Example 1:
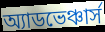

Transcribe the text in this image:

অ্যাডভেঞ্চার্স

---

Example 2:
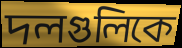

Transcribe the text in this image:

দলগুলিকে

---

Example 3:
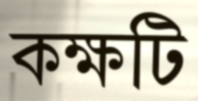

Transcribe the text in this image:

কক্ষটি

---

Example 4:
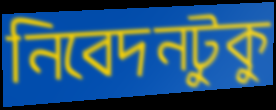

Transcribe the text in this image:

নিবেদনটুকু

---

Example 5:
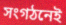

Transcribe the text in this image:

সংগঠনেই